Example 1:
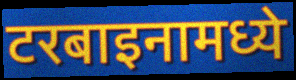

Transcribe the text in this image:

टरबाइनामध्ये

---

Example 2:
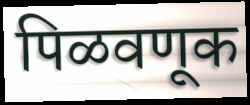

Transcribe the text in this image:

पिळवणूक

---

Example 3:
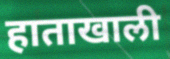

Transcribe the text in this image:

हाताखाली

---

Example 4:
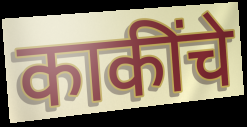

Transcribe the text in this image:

काकींचे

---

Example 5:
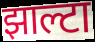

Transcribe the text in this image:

झाल्टा